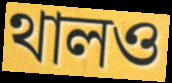
থালও